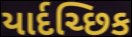
યાર્દચ્છિક